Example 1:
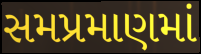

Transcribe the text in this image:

સમપ્રમાણમાં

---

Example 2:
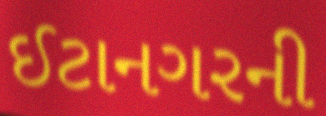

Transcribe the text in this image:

ઈટાનગરની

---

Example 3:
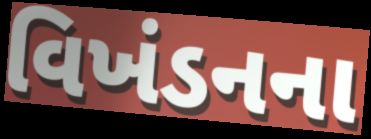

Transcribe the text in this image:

વિખંડનના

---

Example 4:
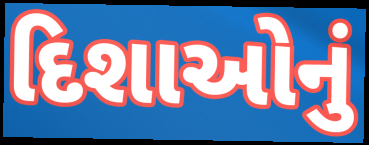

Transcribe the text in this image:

દિશાઓનું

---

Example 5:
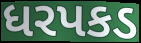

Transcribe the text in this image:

ધરપકડ